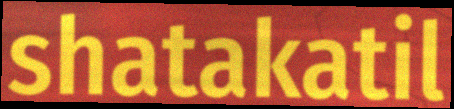
shatakatil